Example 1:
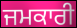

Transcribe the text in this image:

ਜਮਕਾਰੀ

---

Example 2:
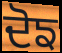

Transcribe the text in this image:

ਦੋਙ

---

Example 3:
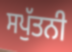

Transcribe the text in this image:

ਸਪੁੱਤਨੀ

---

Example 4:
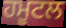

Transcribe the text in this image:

ਹਮੂਟਲ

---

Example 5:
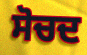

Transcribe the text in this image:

ਸੋਚਦ